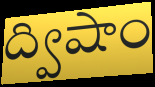
ద్విషాం